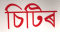
চিটিৰ